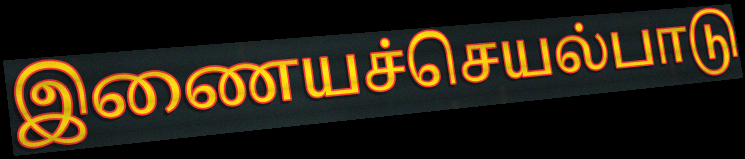
இணையச்செயல்பாடு